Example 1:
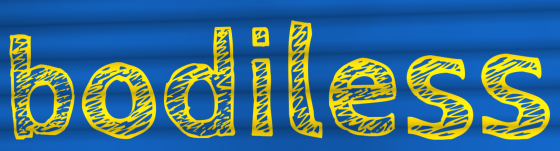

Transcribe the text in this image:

bodiless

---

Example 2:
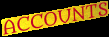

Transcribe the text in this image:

ACCOUNTS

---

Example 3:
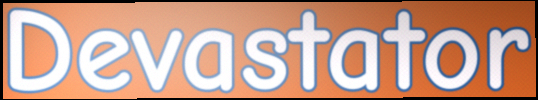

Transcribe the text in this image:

Devastator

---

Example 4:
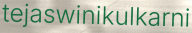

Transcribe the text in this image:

tejaswinikulkarni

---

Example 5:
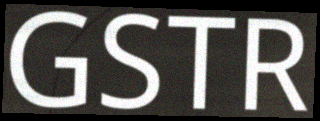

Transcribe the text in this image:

GSTR